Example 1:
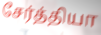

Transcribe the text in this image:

சேர்த்தியா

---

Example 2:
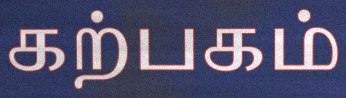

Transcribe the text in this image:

கற்பகம்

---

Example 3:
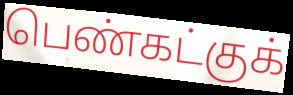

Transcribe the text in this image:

பெண்கட்குக்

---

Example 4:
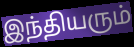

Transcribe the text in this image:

இந்தியரும்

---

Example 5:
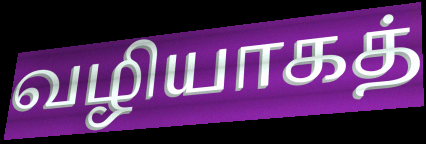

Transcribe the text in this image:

வழியாகத்